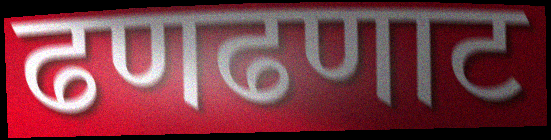
ढणढणाट